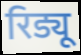
रिड्यू